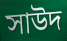
সাউদ